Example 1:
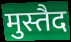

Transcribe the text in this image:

मुस्‍तैद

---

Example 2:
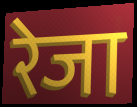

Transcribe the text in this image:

रेजा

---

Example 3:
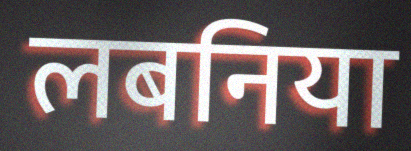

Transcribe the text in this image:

लबनिया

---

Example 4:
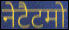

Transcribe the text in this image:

नेटैटमो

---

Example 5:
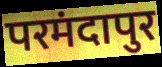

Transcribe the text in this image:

परमंदापुर